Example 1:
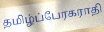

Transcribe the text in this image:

தமிழ்ப்பேரகராதி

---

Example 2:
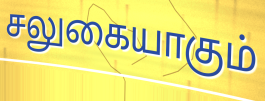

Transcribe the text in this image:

சலுகையாகும்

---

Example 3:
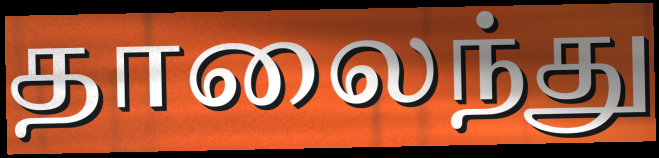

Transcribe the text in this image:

தாலைந்து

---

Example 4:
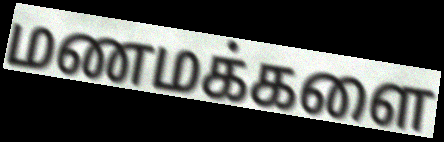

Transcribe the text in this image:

மணமக்களை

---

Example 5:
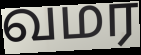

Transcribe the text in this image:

வமர